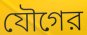
যৌগের